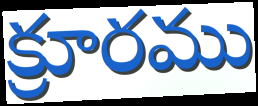
క్రూరము